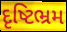
દૃષ્ટિભ્રમ